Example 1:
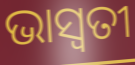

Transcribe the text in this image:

ଭାସ୍ଵତୀ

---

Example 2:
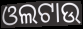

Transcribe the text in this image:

ଓଲଟାଉ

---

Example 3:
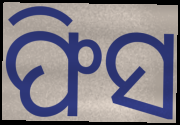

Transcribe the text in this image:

ଫିସ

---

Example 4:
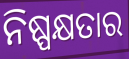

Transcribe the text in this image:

ନିଷ୍ପକ୍ଷତାର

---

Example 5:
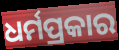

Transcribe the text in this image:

ଧର୍ମପ୍ରକାର